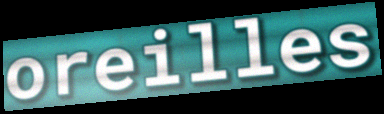
oreilles